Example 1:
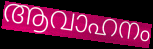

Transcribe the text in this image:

ആവാഹനം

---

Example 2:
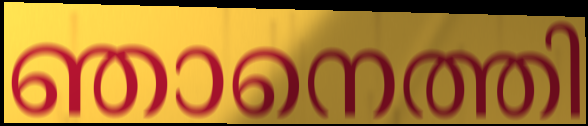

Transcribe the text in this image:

ഞാനെത്തി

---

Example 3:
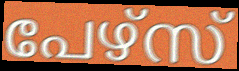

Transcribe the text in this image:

പേഴ്സ്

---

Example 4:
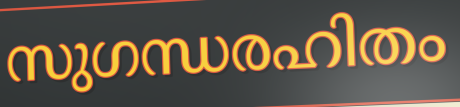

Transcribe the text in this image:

സുഗന്ധരഹിതം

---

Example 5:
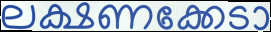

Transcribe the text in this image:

ലക്ഷണക്കേടാ